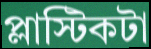
প্লাস্টিকটা